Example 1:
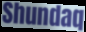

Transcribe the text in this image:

Shundaq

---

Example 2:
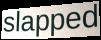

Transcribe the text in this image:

slapped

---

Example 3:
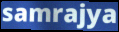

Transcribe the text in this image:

samrajya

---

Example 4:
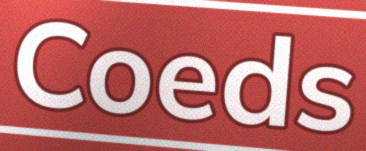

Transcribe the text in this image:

Coeds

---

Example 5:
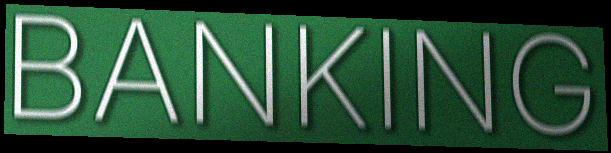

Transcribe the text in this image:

BANKING